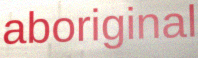
aboriginal